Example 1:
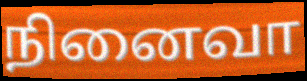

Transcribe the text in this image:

நினைவா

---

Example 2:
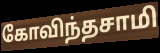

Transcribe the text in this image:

கோவிந்தசாமி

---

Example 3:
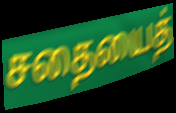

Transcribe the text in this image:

சதையைத்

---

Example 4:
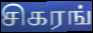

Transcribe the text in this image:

சிகரங்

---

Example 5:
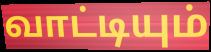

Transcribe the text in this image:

வாட்டியும்